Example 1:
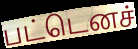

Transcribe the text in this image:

பட்டெனச்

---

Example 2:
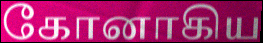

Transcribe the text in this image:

கோனாகிய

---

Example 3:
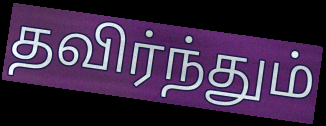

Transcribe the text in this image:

தவிர்ந்தும்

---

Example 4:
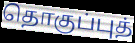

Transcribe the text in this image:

தொகுப்புத்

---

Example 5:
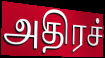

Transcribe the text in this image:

அதிரச்